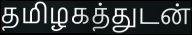
தமிழகத்துடன்